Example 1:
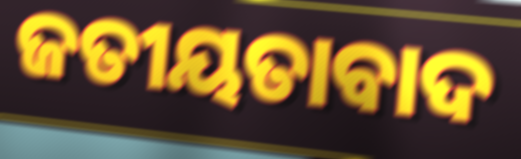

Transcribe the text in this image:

ଜତୀୟତାବାଦ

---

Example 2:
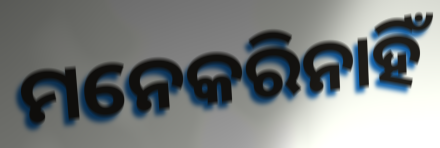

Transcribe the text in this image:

ମନେକରିନାହିଁ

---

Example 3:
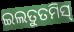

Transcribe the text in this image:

ଇଲତୁତମିସ୍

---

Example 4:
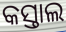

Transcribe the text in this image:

କସ୍ତାଲ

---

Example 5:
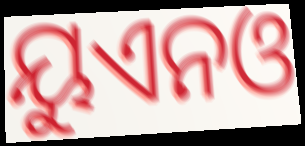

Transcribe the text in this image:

ୟୁଏନଓ